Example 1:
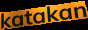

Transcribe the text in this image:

katakan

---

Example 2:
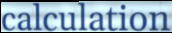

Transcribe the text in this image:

calculation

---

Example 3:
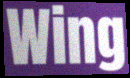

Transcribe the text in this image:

Wing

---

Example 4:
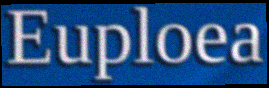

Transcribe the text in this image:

Euploea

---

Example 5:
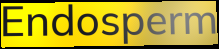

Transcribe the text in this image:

Endosperm